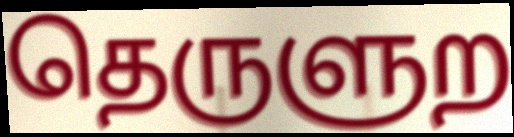
தெருளுற